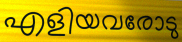
എളിയവരോടു